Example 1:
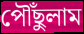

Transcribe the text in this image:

পৌঁছুলাম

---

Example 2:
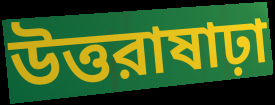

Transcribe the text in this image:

উত্তরাষাঢ়া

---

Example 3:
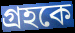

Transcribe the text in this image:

গ্রহকে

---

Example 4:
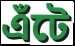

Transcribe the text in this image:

এঁটে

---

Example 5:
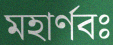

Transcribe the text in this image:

মহার্ণবঃ